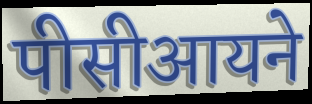
पीसीआयने